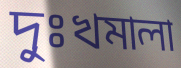
দুঃখমালা